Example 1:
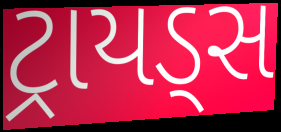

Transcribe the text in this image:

ટ્રાયડ્સ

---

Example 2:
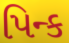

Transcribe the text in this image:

પિન્ક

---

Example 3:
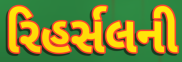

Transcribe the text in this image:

રિહર્સલની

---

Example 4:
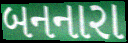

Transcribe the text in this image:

બનનારા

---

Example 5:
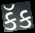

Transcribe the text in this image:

કૅક